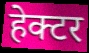
हेक्टर